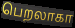
பெறலாகா